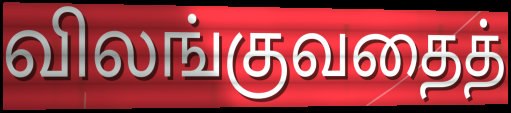
விலங்குவதைத்